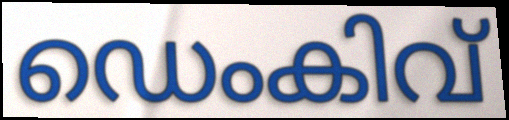
ഡെംകിവ്